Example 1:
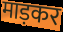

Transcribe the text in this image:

माड़कर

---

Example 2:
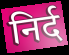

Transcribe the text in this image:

निर्द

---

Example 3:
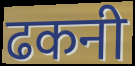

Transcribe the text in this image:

ढकनी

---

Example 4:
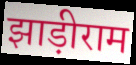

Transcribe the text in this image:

झाड़ीराम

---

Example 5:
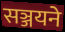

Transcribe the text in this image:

सञ्जयने